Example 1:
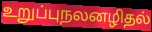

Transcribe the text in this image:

உறுப்புநலனழிதல்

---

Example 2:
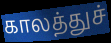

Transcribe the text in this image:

காலத்துச்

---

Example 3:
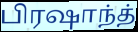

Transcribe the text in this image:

பிரஷாந்த்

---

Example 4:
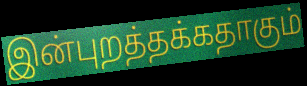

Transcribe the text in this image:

இன்புறத்தக்கதாகும்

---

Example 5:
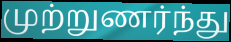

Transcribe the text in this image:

முற்றுணர்ந்து